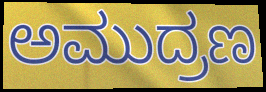
ಅಮುದ್ರಣ